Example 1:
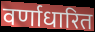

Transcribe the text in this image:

वर्णाधारित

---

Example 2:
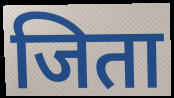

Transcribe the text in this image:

जिता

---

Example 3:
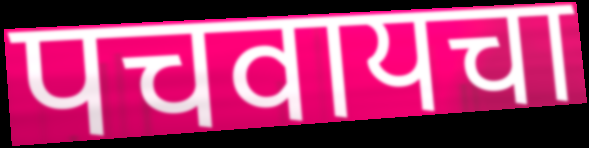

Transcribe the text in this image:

पचवायचा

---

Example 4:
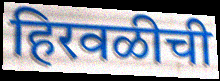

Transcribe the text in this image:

हिरवळीची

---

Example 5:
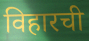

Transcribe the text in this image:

विहारची